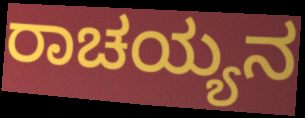
ರಾಚಯ್ಯನ